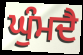
ਘੁੰਮਦੈ